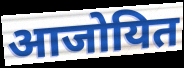
आजोयित